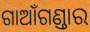
ଗାଆଁଗଣ୍ଡାର